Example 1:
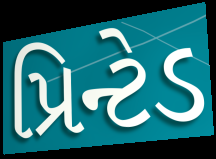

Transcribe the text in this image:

પ્રિન્ટેડ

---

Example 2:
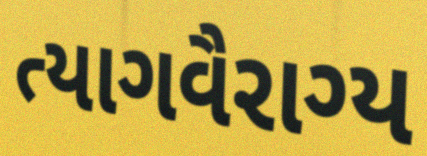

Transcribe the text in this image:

ત્યાગવૈરાગ્ય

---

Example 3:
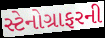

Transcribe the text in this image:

સ્ટેનોગ્રાફરની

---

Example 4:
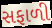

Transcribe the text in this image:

સફાળી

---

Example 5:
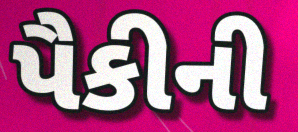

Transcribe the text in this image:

પૈકીની